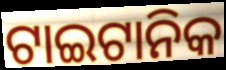
ଟାଇଟାନିକ